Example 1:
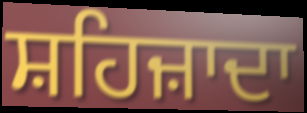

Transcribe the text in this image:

ਸ਼ਹਿਜ਼ਾਦਾ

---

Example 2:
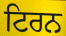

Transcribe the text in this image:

ਟਿਰਨ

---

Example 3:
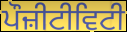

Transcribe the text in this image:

ਪੌਜ਼ੀਟੀਵਿਟੀ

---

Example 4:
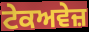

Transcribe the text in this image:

ਟੇਕਅਵੇਜ਼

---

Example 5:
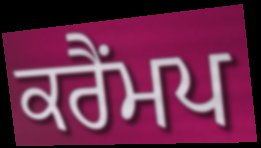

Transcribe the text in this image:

ਕਰੈਂਮਪ